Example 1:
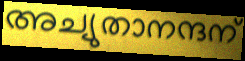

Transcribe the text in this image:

അച്യുതാനന്ദന്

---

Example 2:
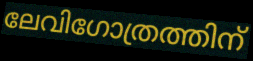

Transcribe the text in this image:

ലേവിഗോത്രത്തിന്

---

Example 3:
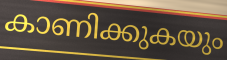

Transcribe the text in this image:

കാണിക്കുകയും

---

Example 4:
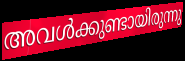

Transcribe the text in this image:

അവൾക്കുണ്ടായിരുന്നു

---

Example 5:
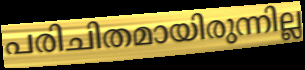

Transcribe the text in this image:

പരിചിതമായിരുന്നില്ല